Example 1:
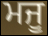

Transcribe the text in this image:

ਮਜੂ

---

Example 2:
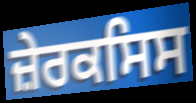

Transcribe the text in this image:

ਜ਼ੇਰਕਸਿਸ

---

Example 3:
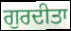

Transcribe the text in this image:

ਗੁਰਦੀਤਾ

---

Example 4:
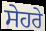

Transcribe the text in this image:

ਸੇਹਰੇ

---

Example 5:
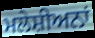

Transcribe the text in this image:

ਮਲੇਸ਼ੀਅਨਾਂ